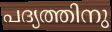
പദ്യത്തിനു